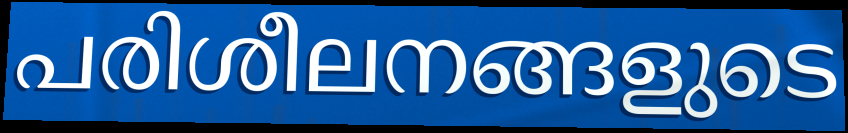
പരിശീലനങ്ങളുടെ